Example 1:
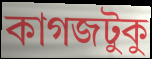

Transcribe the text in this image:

কাগজটুকু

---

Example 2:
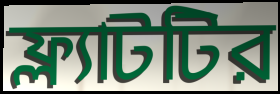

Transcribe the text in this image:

ফ্ল্যাটটির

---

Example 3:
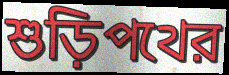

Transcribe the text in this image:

শুড়িপথের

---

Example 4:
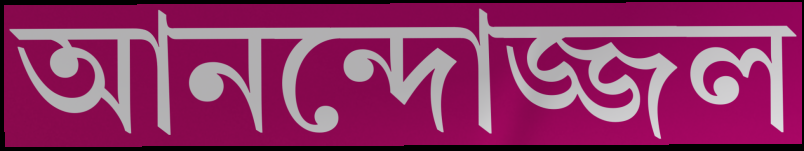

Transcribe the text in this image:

আনন্দোজ্জল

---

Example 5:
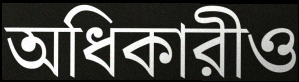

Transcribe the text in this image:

অধিকারীও